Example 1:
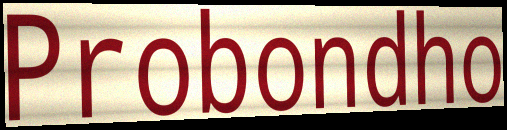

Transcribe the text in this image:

Probondho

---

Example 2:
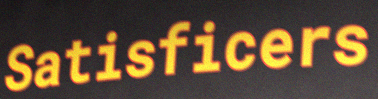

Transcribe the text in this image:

Satisficers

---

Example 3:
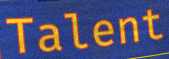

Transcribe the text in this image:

Talent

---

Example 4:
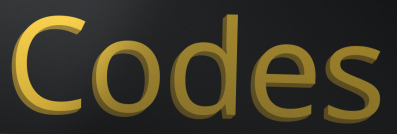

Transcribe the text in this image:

Codes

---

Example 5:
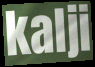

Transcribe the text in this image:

kalji